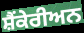
ਸ਼ੈਂਕੇਰੀਅਨ